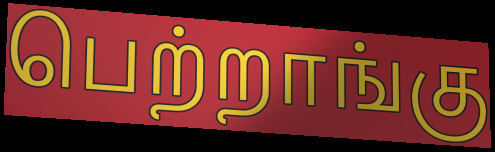
பெற்றாங்கு